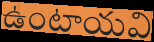
ఉంటాయవి